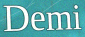
Demi